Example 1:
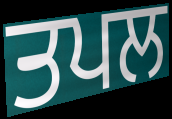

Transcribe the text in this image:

ਤਪਲ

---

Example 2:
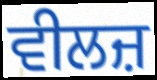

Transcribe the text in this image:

ਵੀਲਜ਼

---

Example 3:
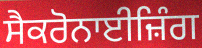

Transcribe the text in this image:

ਸੈਕਰੋਨਾਈਜ਼ਿੰਗ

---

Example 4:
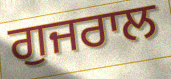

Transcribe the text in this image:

ਗੁਜਰਾਲ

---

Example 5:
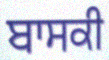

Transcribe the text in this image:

ਬਾਸਕੀ